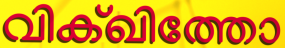
വിക്ഖിത്തോ